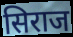
सिराज